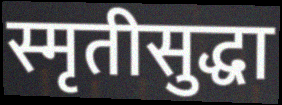
स्मृतीसुद्धा